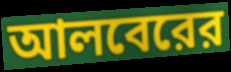
আলবেরের